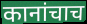
कानांचाच